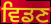
ਵਿਡਣ